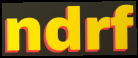
ndrf